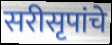
सरीसृपांचे